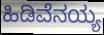
ಹಿಡಿವೆನಯ್ಯ